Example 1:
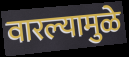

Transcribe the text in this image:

वारल्यामुळे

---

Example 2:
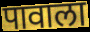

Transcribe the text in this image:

पावाला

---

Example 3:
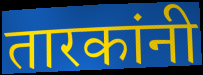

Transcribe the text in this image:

तारकांनी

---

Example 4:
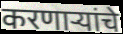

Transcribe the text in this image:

करणाऱ्यांचे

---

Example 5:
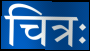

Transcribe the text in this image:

चित्रः